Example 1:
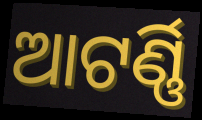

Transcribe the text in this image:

ଆଟର୍ଣ୍ଣି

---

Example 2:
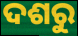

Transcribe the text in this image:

ଦଶରୁ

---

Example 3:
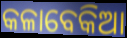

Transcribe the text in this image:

କଳାବେକିଆ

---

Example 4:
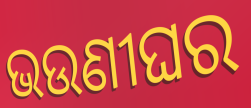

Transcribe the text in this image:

ଭଉଣୀଘର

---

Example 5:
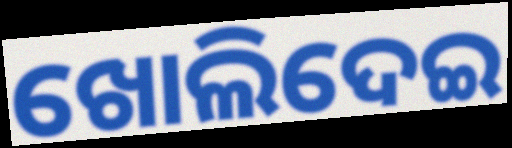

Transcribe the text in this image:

ଖୋଲିଦେଇ